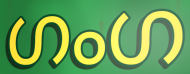
ഗംഗ